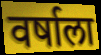
वर्षाला